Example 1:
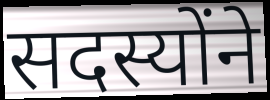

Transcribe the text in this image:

सदस्योंने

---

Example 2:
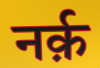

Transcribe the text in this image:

नर्क़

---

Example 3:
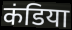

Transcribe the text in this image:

कंडिया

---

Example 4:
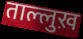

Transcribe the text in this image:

ताल्लुख़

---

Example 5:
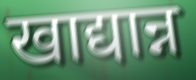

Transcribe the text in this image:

खाद्यान्न